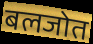
बलजोत